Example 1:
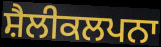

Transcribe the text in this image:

ਸ਼ੈਲੀਕਲਪਨਾ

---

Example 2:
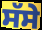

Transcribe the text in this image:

ਸੱਸੇ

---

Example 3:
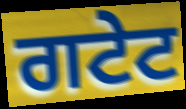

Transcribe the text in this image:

ਗਟੇਟ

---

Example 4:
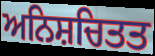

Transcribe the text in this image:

ਅਨਿਸ਼ਚਿਤਤ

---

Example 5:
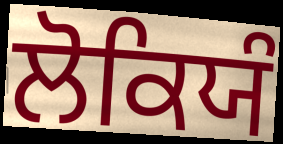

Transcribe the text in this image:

ਲੋਕਿਯੰ